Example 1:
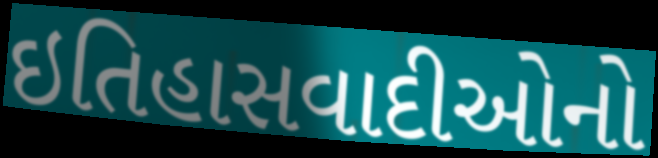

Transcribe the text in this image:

ઇતિહાસવાદીઓનો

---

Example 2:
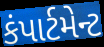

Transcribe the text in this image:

કંપાર્ટમેન્ટ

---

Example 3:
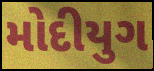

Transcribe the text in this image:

મોદીયુગ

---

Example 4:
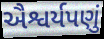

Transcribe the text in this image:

ઐશ્વર્યપણું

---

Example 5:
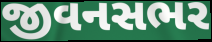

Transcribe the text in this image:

જીવનસભર